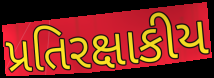
પ્રતિરક્ષાકીય